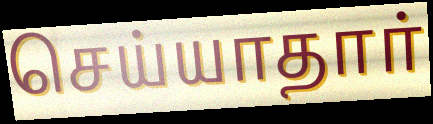
செய்யாதார்